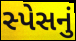
સ્પેસનું